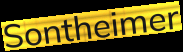
Sontheimer